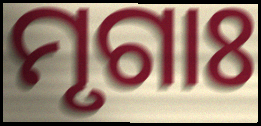
ମୃଗାଃ